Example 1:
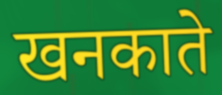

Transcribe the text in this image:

खनकाते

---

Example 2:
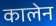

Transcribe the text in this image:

कालेन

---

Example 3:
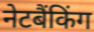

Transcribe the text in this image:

नेटबैंकिंग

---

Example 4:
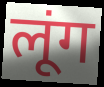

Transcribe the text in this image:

लूंग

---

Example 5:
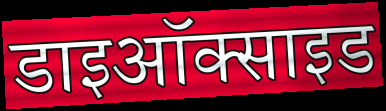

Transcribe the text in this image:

डाइऑक्साइड